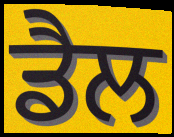
ਡੈਲ